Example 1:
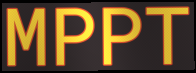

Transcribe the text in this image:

MPPT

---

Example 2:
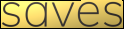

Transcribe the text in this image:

saves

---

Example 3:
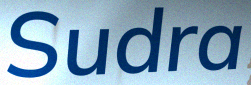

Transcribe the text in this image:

Sudra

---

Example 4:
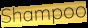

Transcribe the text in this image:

Shampoo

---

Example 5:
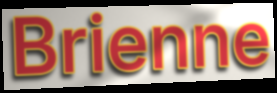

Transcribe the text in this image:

Brienne